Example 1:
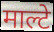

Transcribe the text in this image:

माल्टे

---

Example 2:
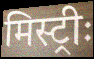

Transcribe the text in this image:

मिस्ट्रीः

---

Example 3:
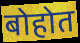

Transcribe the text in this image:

बोहोत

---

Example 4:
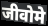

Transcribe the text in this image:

जीवोमे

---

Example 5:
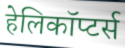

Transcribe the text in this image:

हेलिकॉप्टर्स